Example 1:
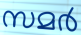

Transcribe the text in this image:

സമർ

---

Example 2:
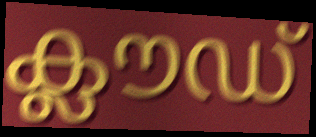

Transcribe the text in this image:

ക്ലൗഡ്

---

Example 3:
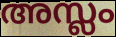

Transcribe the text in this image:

അസ്ലം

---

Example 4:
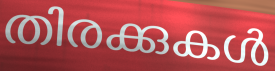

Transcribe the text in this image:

തിരക്കുകൾ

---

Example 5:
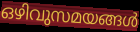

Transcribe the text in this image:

ഒഴിവുസമയങ്ങൾ